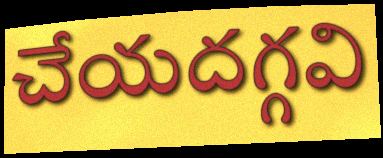
చేయదగ్గవి